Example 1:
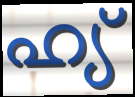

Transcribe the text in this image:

ഹ്യ്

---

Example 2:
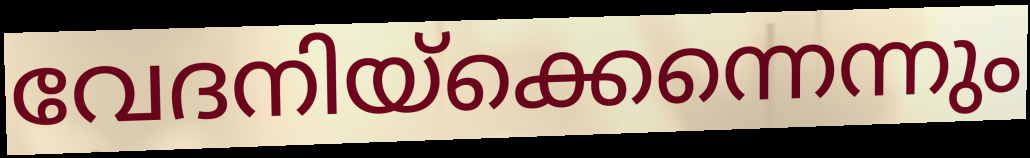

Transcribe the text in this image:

വേദനിയ്ക്കെന്നെന്നും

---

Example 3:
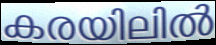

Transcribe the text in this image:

കരയിലിൽ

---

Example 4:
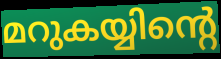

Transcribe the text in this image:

മറുകയ്യിന്റെ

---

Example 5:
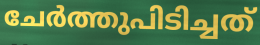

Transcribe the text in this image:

ചേർത്തുപിടിച്ചത്